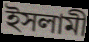
ইসলামী